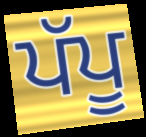
ਪੱਪੂ